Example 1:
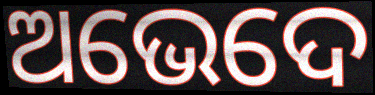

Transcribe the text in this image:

ଅଭେଦେ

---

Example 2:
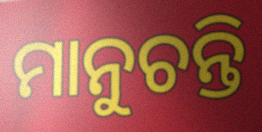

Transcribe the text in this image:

ମାନୁଚନ୍ତି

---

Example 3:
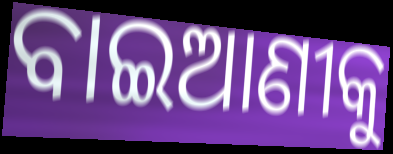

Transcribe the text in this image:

ବାଇଆଣୀକୁ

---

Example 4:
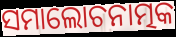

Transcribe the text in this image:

ସମାଲୋଚନାତ୍ମକ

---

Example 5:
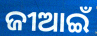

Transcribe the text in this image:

ଜୀଆଇଁ